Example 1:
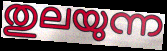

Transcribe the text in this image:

തുലയുന്ന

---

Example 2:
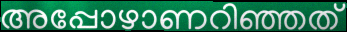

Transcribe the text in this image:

അപ്പോഴാണറിഞ്ഞത്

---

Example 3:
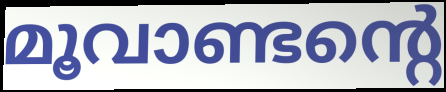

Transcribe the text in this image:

മൂവാണ്ടന്റെ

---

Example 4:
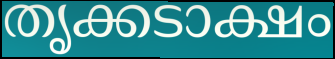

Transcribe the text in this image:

തൃക്കടാക്ഷം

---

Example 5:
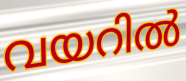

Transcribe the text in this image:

വയറിൽ